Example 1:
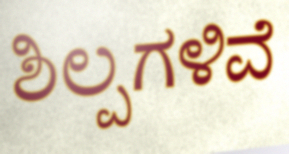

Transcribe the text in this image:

ಶಿಲ್ಪಗಳಿವೆ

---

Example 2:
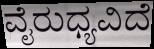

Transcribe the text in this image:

ವೈರುಧ್ಯವಿದೆ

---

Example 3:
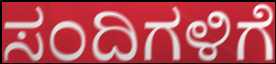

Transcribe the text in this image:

ಸಂದಿಗಳಿಗೆ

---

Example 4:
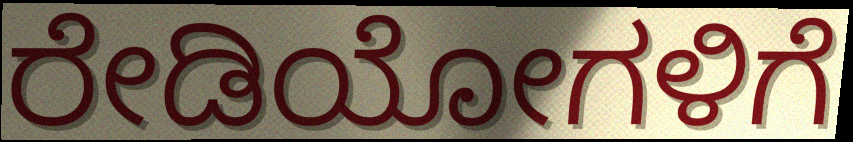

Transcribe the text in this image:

ರೇಡಿಯೋಗಳಿಗೆ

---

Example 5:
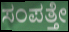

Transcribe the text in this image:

ಸಂಪತ್ತೇ